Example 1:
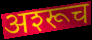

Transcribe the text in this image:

अश्रूच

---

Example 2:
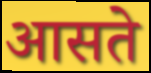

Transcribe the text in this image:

आसते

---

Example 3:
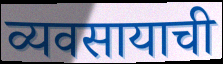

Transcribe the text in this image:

व्यवसायाची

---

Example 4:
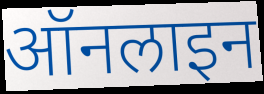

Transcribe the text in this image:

ऑनलाइन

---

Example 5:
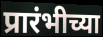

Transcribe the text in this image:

प्रारंभीच्या